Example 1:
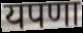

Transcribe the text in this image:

यपणा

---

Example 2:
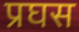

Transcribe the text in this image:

प्रघस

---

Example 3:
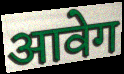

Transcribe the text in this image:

आवेग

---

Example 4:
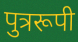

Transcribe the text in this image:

पुत्ररूपी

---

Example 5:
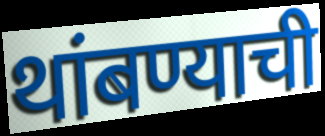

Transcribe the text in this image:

थांबण्याची